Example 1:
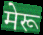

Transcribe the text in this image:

मेरू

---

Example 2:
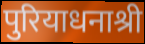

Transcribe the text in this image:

पुरियाधनाश्री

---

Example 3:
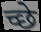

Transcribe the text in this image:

च्छे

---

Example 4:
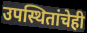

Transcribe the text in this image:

उपस्थितांचेही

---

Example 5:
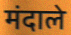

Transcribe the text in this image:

मंदाले